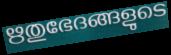
ഋതുഭേദങ്ങളുടെ